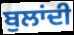
ਬੁਲਾਂਦੀ